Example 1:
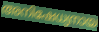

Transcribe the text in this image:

അനിഷേധ്യനായ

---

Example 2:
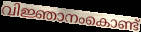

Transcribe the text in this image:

വിജ്ഞാനംകൊണ്ട്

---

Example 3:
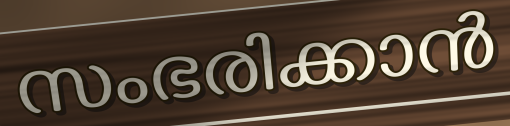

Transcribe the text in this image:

സംഭരിക്കാൻ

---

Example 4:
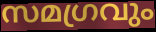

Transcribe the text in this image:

സമഗ്രവും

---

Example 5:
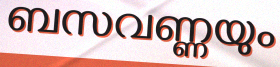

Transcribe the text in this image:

ബസവണ്ണയും